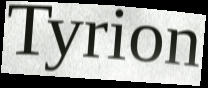
Tyrion